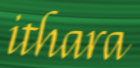
ithara